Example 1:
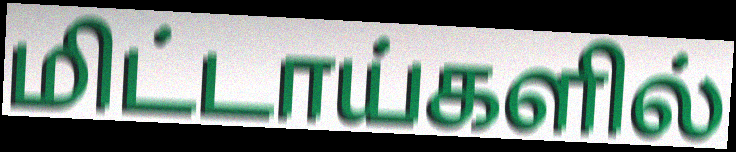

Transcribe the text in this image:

மிட்டாய்களில்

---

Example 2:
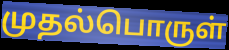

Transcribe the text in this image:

முதல்பொருள்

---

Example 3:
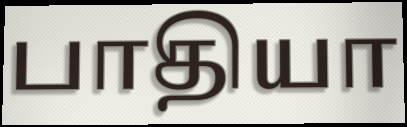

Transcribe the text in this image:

பாதியா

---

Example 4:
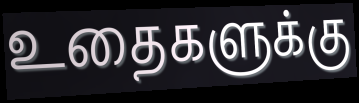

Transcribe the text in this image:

உதைகளுக்கு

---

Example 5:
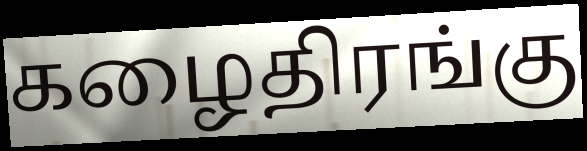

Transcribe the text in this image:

கழைதிரங்கு